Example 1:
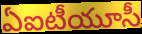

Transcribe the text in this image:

ఏఐటీయూసీ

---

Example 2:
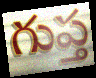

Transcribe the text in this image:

గుప్త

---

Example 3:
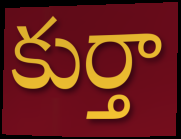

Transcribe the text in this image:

కుర్తా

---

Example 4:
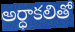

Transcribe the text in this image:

అర్ధాకలితో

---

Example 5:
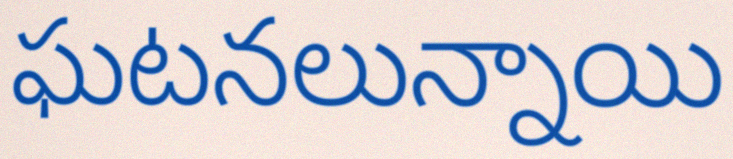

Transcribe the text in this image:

ఘటనలున్నాయి